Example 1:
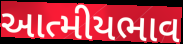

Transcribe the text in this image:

આત્મીયભાવ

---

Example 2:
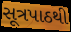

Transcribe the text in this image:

સૂત્રપાઠથી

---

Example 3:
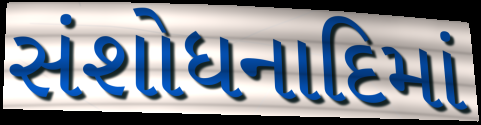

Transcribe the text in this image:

સંશોધનાદિમાં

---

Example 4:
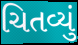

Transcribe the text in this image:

ચિતવ્યું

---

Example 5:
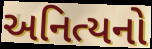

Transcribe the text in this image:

અનિત્યનો